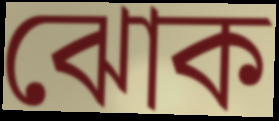
ঝোক